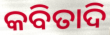
କବିତାଦି